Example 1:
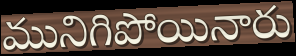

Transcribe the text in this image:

మునిగిపోయినారు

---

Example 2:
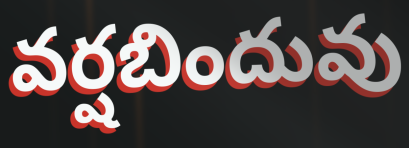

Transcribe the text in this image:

వర్షబిందువు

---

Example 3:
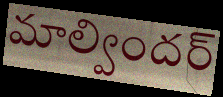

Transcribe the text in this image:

మాల్విందర్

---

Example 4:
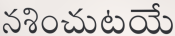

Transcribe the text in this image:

నశించుటయే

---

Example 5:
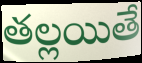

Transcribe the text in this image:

తల్లయితే